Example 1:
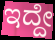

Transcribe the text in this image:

ಇದ್ದೇ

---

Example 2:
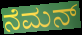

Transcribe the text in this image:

ನೆಮನ್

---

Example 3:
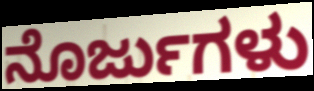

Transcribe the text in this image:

ನೊರ್ಜುಗಳು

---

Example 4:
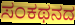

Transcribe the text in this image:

ಸಂಕಥನದ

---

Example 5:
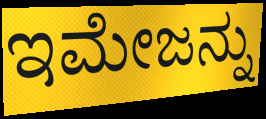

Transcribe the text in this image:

ಇಮೇಜನ್ನು